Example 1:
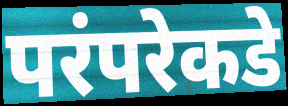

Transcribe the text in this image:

परंपरेकडे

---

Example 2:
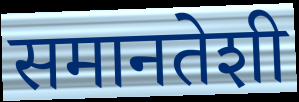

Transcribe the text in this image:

समानतेशी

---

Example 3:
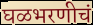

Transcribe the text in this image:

घळभरणीचं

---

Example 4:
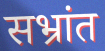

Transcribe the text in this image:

सभ्रांत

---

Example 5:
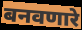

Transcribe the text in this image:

बनवणारे